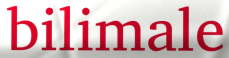
bilimale